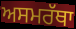
ਅਸਮਰੱਥਾ